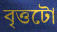
বৃত্তটো